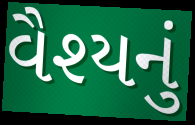
વૈશ્યનું